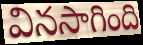
వినసాగింది